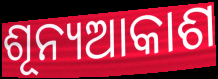
ଶୂନ୍ୟଆକାଶ